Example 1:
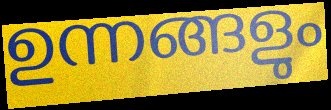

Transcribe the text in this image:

ഉന്നങ്ങളും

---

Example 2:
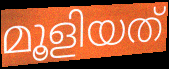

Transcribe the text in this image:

മൂളിയത്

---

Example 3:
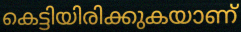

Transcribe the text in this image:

കെട്ടിയിരിക്കുകയാണ്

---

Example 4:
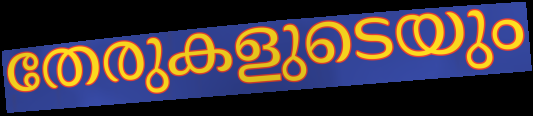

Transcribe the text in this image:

തേരുകളുടെയും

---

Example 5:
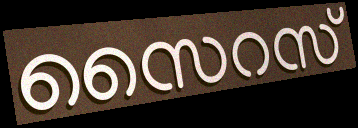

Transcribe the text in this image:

സൈറസ്